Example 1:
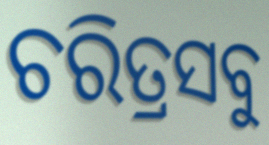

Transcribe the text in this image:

ଚରିତ୍ରସବୁ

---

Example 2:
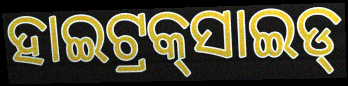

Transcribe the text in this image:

ହାଇଟ୍ରକ୍‌ସାଇଡ୍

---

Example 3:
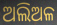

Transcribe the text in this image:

ଅଲିଅଳ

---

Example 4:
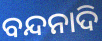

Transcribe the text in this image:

ବନ୍ଦନାଦି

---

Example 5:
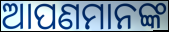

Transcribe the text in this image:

ଆପଣମାନଙ୍କ